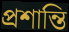
প্রশান্তি